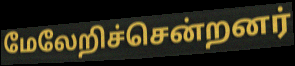
மேலேறிச்சென்றனர்